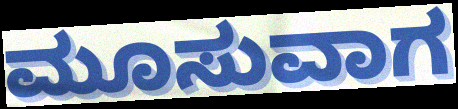
ಮೂಸುವಾಗ